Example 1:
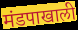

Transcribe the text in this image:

मंडपाखाली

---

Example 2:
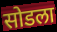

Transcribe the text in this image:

सोडला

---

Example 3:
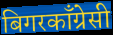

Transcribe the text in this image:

बिगरकाँग्रेसी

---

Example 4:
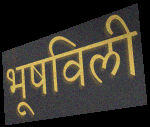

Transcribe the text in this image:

भूषविली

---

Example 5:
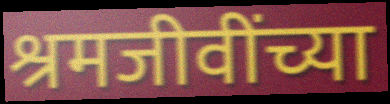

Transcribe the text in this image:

श्रमजीवींच्या